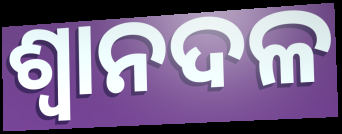
ଶ୍ୱାନଦଳ